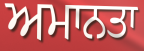
ਅਮਾਨਤਾ